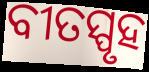
ବୀତସ୍ପୃହ